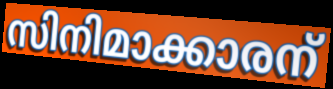
സിനിമാക്കാരന്